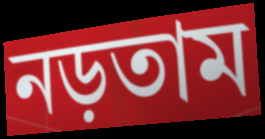
নড়তাম